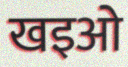
खइओ